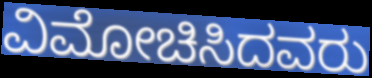
ವಿಮೋಚಿಸಿದವರು